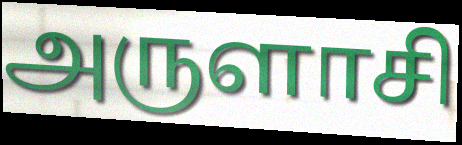
அருளாசி